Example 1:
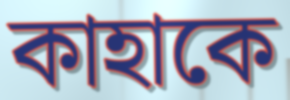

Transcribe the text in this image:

কাহাকে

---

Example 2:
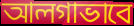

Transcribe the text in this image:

আলগাভাবে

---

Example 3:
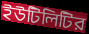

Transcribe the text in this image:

ইউটিলিটির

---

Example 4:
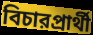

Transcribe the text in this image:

বিচারপ্রার্থী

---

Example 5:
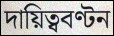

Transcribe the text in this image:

দায়িত্ববণ্টন